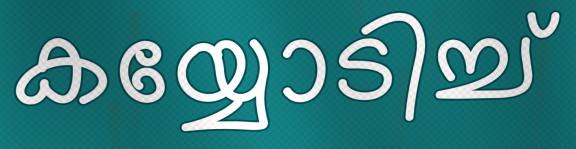
കയ്യോടിച്ച്